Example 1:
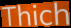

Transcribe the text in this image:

Thich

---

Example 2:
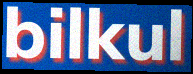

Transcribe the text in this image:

bilkul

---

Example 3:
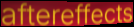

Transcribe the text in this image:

aftereffects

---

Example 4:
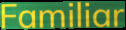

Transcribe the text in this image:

Familiar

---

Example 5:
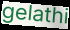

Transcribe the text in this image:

gelathi